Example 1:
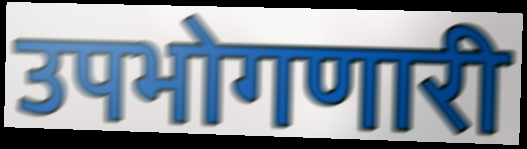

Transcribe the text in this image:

उपभोगणारी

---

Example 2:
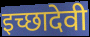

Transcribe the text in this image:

इच्छादेवी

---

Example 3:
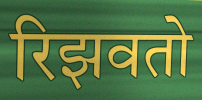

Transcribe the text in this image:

रिझवतो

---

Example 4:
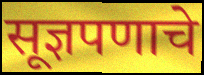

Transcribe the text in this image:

सूज्ञपणाचे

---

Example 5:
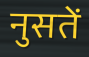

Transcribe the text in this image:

नुसतें